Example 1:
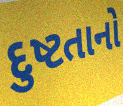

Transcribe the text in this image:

દુષ્ટતાનો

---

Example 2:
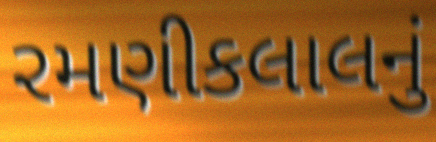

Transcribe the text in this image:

રમણીકલાલનું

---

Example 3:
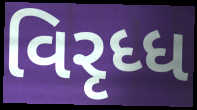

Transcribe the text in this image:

વિરૃધ્ધ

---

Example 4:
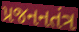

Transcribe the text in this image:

પ્રજનનતંત્ર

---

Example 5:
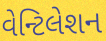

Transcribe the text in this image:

વેન્ટિલેશન